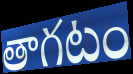
తాగటం